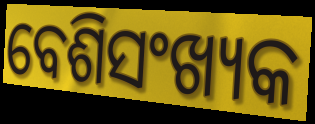
ବେଶିସଂଖ୍ୟକ